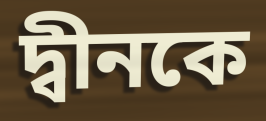
দ্বীনকে